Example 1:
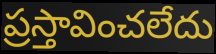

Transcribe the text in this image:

ప్రస్తావించలేదు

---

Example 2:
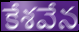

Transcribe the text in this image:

కేశవేన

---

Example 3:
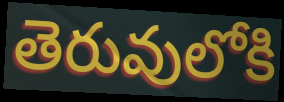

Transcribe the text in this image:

తెరువులోకి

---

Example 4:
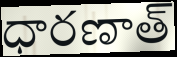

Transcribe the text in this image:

ధారణాత్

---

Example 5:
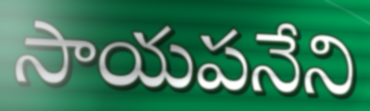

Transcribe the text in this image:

సాయపనేని